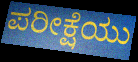
ಪರೀಕ್ಷೆಯು